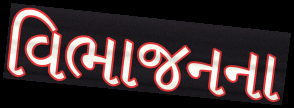
વિભાજનના